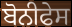
ਬੋਨੀਫੇਸ